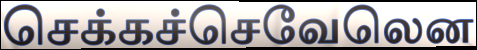
செக்கச்செவேலென